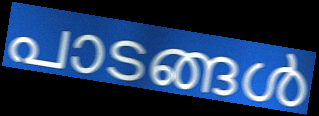
പാടങ്ങൾ